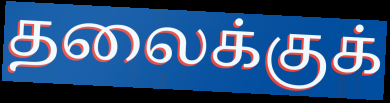
தலைக்குக்